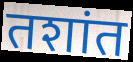
तशांत